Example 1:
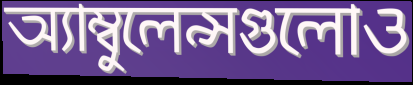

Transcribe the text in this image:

অ্যাম্বুলেন্সগুলোও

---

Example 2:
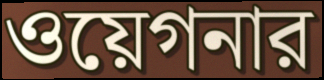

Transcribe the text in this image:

ওয়েগনার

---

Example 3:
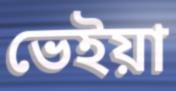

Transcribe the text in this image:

ভেইয়া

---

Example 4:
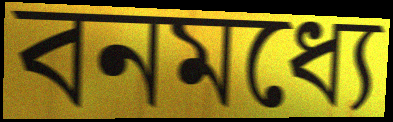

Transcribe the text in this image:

বনমধ্যে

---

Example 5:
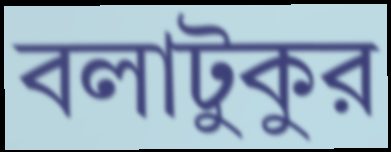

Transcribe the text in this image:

বলাটুকুর